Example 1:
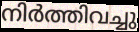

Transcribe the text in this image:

നിർത്തിവച്ചു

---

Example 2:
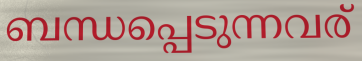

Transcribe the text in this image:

ബന്ധപ്പെടുന്നവര്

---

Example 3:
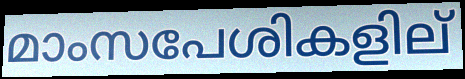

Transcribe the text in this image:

മാംസപേശികളില്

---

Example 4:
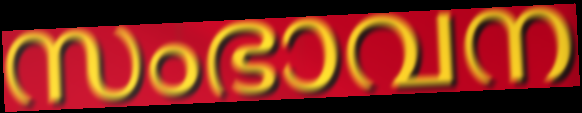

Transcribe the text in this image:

സംഭാവന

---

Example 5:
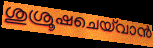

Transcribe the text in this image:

ശുശ്രൂഷചെയ്‌വാൻ